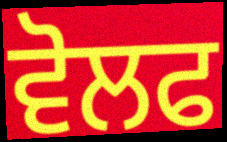
ਵੋਲਫ